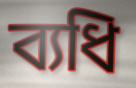
ব্যধি